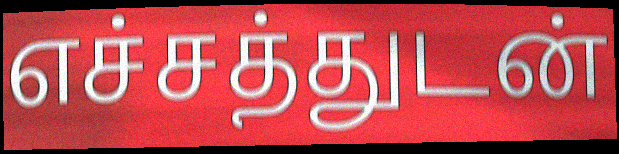
எச்சத்துடன்